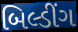
બિલ્ડીંગ